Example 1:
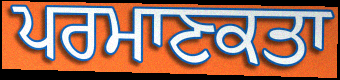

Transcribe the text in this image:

ਪਰਮਾਣਕਤਾ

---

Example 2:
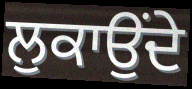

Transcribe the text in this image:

ਲੁਕਾਉਂਦੇ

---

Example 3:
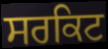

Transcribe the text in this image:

ਸਰਕਿਟ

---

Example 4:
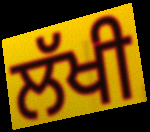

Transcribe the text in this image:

ਲੱਖੀ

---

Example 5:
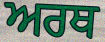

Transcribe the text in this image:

ਅਰਥ